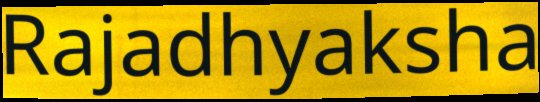
Rajadhyaksha